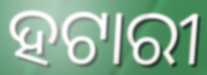
ହଟାରୀ